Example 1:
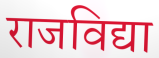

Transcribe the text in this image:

राजविद्या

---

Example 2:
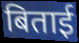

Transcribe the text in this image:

बिताई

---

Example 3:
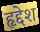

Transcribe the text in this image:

हृद्देश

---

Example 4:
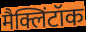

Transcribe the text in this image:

मैक्लिंटॉक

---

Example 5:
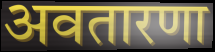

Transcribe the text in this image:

अवतारणा